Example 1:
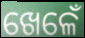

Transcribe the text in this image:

ଖେଳେଁ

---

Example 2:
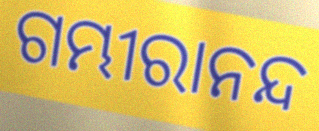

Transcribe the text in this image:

ଗମ୍ଭୀରାନନ୍ଦ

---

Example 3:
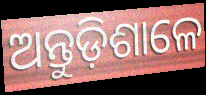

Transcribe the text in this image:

ଅନ୍ତୁଡ଼ିଶାଳେ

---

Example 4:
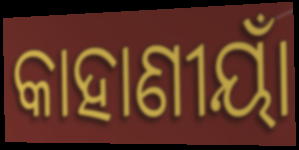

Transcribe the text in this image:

କାହାଣୀୟାଁ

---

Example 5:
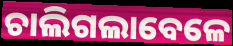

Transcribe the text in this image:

ଚାଲିଗଲାବେଳେ